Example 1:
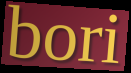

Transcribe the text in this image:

bori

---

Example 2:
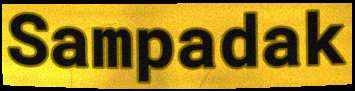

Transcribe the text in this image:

Sampadak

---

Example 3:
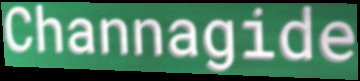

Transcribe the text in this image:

Channagide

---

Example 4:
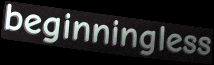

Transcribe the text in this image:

beginningless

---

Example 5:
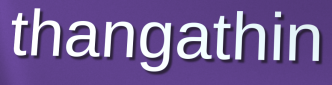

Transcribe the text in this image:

thangathin